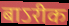
बाऽरीक